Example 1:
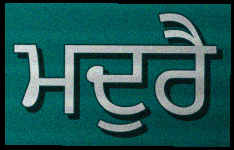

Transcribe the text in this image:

ਮਦੁਰੈ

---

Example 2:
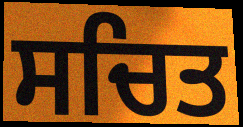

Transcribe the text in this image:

ਸਚਿਤ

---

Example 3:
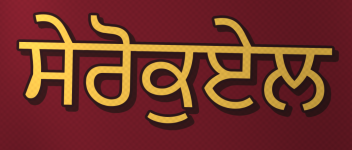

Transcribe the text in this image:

ਸੇਰੋਕੁਏਲ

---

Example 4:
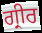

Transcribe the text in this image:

ਗ੍ਰੀਰ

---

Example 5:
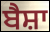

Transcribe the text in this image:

ਬੈਸ਼ਾ